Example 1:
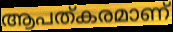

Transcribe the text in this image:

ആപത്കരമാണ്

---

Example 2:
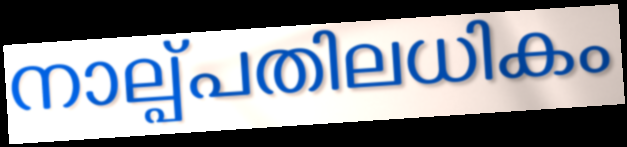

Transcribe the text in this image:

നാല്പ്പതിലധികം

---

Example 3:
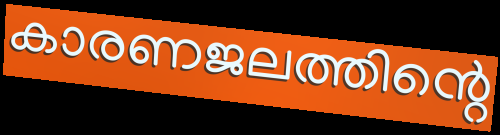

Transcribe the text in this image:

കാരണജലത്തിന്റെ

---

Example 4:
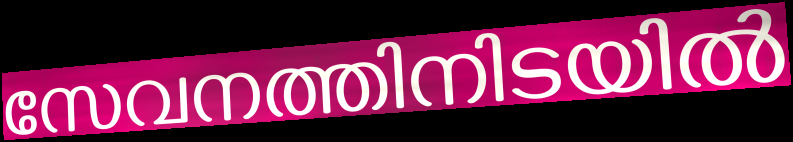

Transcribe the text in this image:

സേവനത്തിനിടയിൽ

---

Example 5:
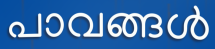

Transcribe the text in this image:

പാവങ്ങൾ